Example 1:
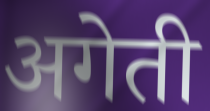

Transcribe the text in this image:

अगेती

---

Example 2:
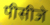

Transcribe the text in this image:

पीसीजे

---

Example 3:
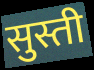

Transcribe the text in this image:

सुस्ती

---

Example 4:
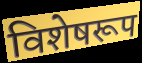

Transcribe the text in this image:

विशेषरूप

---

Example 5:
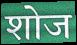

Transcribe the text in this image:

शोज